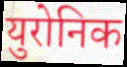
युरोनिक